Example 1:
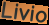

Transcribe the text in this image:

Livio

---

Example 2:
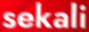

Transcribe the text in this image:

sekali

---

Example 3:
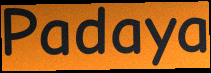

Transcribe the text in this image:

Padaya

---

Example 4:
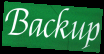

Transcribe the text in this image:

Backup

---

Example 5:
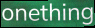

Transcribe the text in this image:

onething